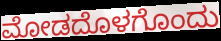
ಮೋಡದೊಳಗೊಂದು